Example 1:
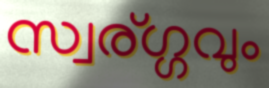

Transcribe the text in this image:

സ്വര്ഗ്ഗവും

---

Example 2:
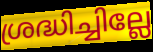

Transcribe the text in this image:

ശ്രദ്ധിച്ചില്ലേ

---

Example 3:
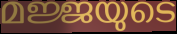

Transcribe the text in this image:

മജ്ജയുടെ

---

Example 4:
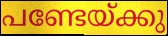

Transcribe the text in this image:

പണ്ടേയ്ക്കു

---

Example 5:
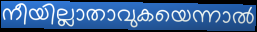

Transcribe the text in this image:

നീയില്ലാതാവുകയെന്നാൽ